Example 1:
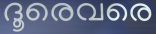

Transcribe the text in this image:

ദൂരെവരെ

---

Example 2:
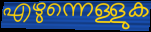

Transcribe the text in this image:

എഴുന്നെള്ളുക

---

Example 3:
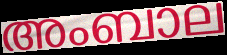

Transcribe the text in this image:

അംബാല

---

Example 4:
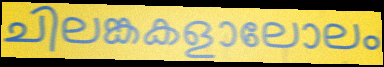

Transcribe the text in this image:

ചിലങ്കകളാലോലം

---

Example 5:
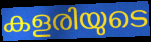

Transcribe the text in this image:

കളരിയുടെ